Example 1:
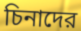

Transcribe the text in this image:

চিনাদের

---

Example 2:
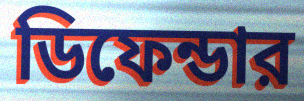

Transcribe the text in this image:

ডিফেন্ডার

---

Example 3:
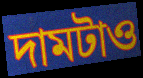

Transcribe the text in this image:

দামটাও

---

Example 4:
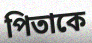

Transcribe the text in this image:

পিতাকে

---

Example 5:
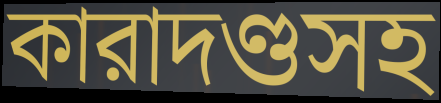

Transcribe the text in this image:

কারাদণ্ডসহ